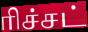
ரிச்சட்